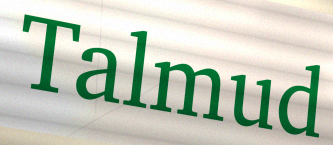
Talmud